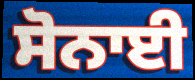
ਸੋਨਾਈ